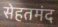
सेहतमंद